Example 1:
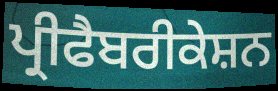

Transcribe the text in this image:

ਪ੍ਰੀਫੈਬਰੀਕੇਸ਼ਨ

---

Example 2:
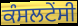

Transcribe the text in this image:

ਕੰਸਲਟੇਂਸੀ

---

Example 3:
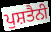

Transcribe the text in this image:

ਪੁਸ਼ਤੈਨੀ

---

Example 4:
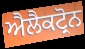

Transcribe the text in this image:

ਐਲੈਕਟ੍ਰੋਨ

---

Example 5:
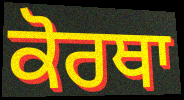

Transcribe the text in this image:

ਕੋਰਥਾ